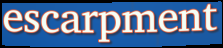
escarpment